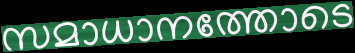
സമാധാനത്തോടെ